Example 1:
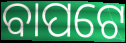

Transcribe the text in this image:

ବାପଟେ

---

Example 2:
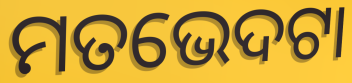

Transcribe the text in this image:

ମତଭେଦଟା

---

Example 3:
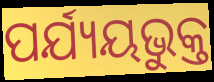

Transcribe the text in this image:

ପର୍ଯ୍ୟୟଭୁକ୍ତ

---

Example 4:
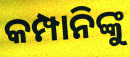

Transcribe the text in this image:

କମ୍ପାନିଙ୍କୁ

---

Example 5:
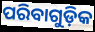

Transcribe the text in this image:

ପରିବାଗୁଡ଼ିକ